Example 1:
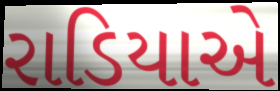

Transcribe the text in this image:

રાડિયાએ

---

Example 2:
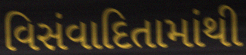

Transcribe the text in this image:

વિસંવાદિતામાંથી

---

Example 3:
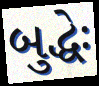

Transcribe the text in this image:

બુદ્ધેઃ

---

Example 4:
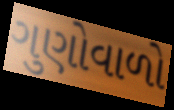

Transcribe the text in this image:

ગુણોવાળો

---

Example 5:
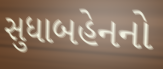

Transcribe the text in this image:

સુધાબહેનનો